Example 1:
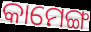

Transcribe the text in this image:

କାମେଙ୍ଗ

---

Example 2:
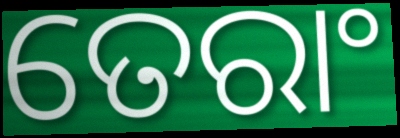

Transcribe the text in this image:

ତେରାଂ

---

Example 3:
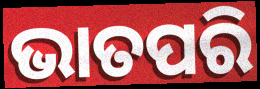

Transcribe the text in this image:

ଭାତପରି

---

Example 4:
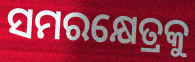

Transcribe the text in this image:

ସମରକ୍ଷେତ୍ରକୁ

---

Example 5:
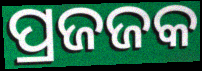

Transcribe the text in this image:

ପ୍ରଜଜକ